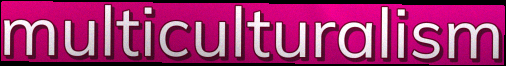
multiculturalism